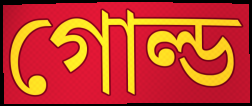
গোল্ড